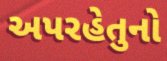
અપરહેતુનો